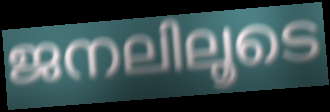
ജനലിലൂടെ